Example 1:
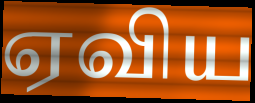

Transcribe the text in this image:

ஏவிய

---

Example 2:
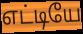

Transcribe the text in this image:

எட்டியே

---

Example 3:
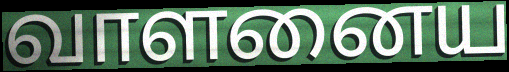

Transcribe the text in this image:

வாளனைய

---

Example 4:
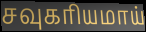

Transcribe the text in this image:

சவுகரியமாய்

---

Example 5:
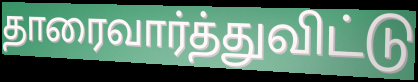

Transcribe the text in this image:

தாரைவார்த்துவிட்டு